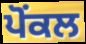
ਪੋਂਕਲ